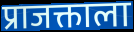
प्राजक्ताला